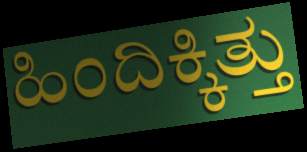
ಹಿಂದಿಕ್ಕಿತ್ತು